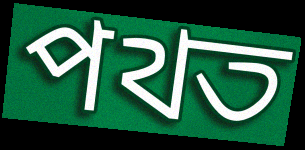
পথত